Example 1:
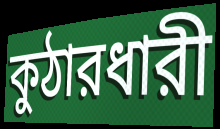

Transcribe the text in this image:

কুঠারধারী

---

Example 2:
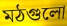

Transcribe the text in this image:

মঠগুলো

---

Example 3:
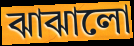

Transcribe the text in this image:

ঝাঝালো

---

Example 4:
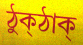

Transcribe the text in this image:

ঠুক্ঠাক্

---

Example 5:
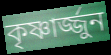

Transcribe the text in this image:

কৃষ্ণার্জ্জুন